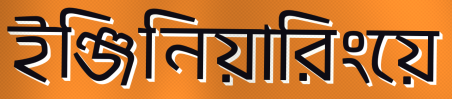
ইঞ্জিনিয়ারিংয়ে